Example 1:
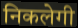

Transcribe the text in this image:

निकलेगी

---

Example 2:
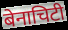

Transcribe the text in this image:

बेनाचिटी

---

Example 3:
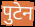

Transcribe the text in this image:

पुटेन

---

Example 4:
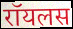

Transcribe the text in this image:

रॉयलस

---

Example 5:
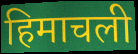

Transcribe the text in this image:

हिमाचली